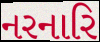
નરનારિ